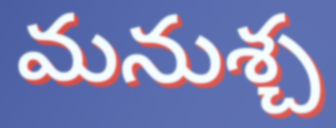
మనుశ్చ